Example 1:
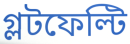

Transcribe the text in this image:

গ্লটফেল্টি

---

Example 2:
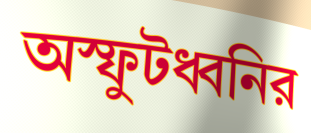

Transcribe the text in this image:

অস্ফুটধ্বনির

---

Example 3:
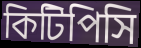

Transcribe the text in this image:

কিটিপিসি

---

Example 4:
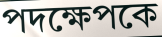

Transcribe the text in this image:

পদক্ষেপকে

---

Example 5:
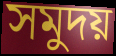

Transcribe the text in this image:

সমুদয়